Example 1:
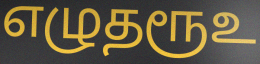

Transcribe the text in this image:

எழுதரூஉ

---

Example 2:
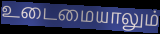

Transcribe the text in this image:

உடைமையாலும்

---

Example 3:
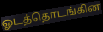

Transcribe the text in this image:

ஓடத்தொடங்கின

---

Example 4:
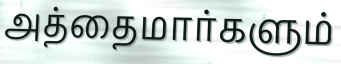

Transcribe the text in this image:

அத்தைமார்களும்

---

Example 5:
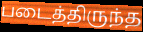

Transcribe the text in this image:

படைத்திருந்த